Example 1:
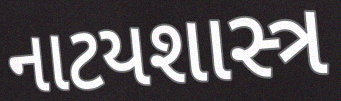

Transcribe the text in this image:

નાટયશાસ્ત્ર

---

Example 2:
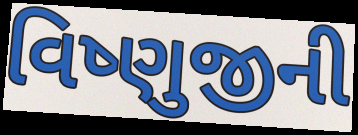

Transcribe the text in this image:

વિષ્ણુજીની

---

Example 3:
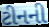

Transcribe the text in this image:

ટીનની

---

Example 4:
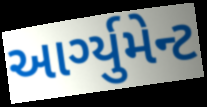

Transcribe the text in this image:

આર્ગ્યુમેન્ટ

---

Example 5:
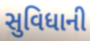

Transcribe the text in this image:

સુવિધાની